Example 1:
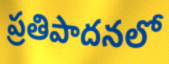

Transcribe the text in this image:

ప్రతిపాదనలో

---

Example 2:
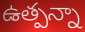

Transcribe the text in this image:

ఉత్పన్నా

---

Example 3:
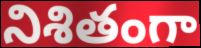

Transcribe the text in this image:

నిశితంగా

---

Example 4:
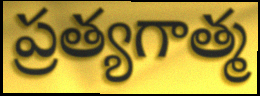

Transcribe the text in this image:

ప్రత్యగాత్మ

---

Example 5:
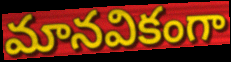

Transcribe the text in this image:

మానవికంగా